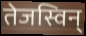
तेजस्विन्